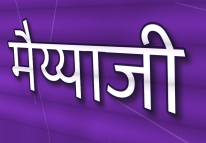
मैय्याजी